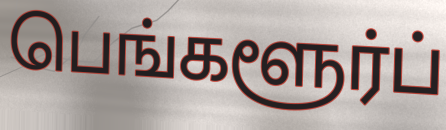
பெங்களூர்ப்